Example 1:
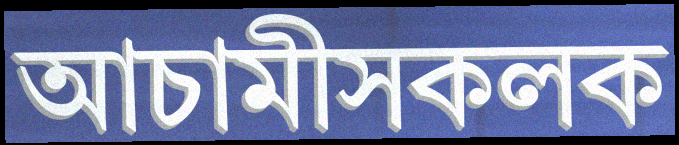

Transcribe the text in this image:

আচামীসকলক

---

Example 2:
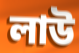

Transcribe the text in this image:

লাউ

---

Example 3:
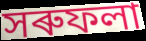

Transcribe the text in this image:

সৰুফলা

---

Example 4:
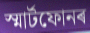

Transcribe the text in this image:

স্মাৰ্টফোনৰ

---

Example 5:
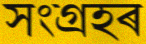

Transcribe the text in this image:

সংগ্ৰহৰ